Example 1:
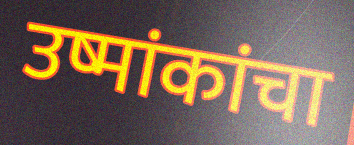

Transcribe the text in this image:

उष्मांकांचा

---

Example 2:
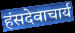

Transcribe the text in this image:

हंसदेवाचार्य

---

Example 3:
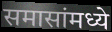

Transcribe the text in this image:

समासांमध्ये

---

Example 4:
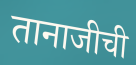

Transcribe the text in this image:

तानाजीची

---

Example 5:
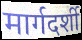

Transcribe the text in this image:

मार्गदर्शी